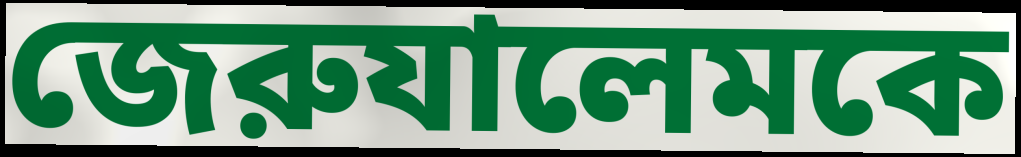
জেরুযালেমকে